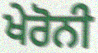
ਖੇਰੋਨੀ